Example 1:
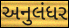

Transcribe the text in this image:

અનુલંધર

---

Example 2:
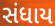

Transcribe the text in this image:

સંધાય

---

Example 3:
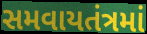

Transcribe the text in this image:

સમવાયતંત્રમાં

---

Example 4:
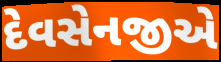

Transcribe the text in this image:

દેવસેનજીએ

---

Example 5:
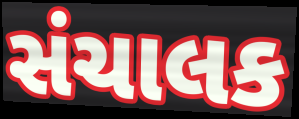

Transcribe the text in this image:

સંચાલક